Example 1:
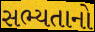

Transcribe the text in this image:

સભ્યતાનો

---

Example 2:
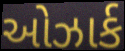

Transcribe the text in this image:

ઓઝાર્ક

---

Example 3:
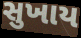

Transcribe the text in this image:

સુખાય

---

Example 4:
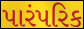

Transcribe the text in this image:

પારંપરિક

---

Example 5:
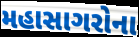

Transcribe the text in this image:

મહાસાગરોના